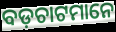
ବଡ଼ଚାଟମାନେ